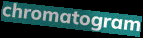
chromatogram